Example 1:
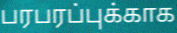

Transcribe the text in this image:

பரபரப்புக்காக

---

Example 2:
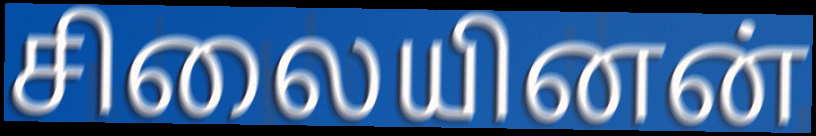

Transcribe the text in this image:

சிலையினன்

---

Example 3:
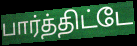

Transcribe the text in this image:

பார்த்திட்டே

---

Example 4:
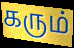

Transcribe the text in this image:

கரும்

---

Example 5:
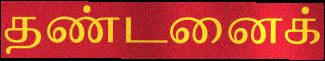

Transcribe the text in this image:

தண்டனைக்